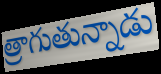
త్రాగుతున్నాడు